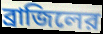
ব্রাজিলের